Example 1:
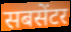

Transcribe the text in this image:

सबसेंटर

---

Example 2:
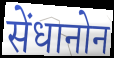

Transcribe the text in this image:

सेंधानोन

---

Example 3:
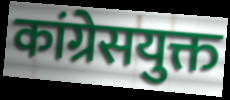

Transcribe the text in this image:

कांग्रेसयुक्त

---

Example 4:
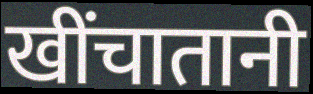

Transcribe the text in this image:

खींचातानी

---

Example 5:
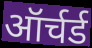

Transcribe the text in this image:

ऑर्चर्ड